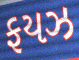
ફયઝ